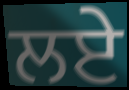
ਲਏ